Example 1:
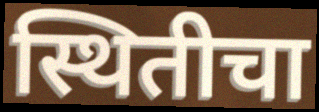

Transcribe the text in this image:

स्थितीचा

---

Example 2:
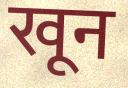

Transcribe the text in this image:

खून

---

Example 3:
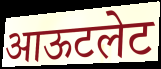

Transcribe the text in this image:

आऊटलेट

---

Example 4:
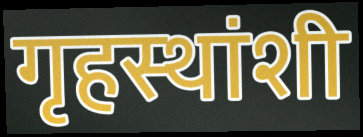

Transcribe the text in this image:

गृहस्थांशी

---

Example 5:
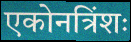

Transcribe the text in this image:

एकोनत्रिंशः